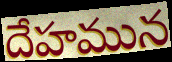
దేహమున